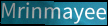
Mrinmayee